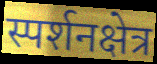
स्पर्शनक्षेत्र